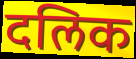
दलिक